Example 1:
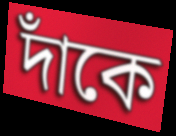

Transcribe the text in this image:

দাঁকে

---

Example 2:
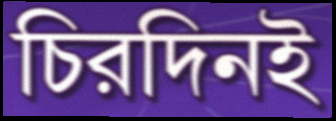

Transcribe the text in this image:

চিরদিনই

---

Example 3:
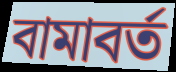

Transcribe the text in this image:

বামাবর্ত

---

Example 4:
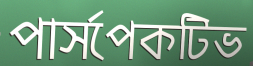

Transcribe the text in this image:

পার্সপেকটিভ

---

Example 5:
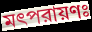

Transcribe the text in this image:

মৎপরায়ণঃ